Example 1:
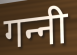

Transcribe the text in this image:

गन्नी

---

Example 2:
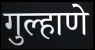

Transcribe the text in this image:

गुल्हाणे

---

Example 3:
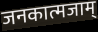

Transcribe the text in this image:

जनकात्मजाम्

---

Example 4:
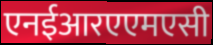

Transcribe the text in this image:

एनईआरएएमएसी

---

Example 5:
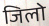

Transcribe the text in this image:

जिलो